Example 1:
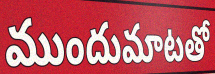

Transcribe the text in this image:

ముందుమాటతో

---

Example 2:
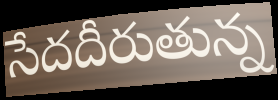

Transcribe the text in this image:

సేదదీరుతున్న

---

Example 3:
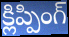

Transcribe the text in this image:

క్లిప్పింగ్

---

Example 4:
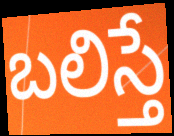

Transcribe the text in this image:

బలిస్తే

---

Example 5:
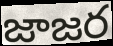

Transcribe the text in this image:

జాజర